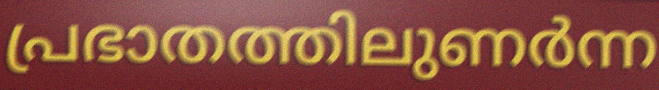
പ്രഭാതത്തിലുണർന്ന